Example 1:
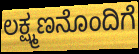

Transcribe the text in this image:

ಲಕ್ಷ್ಮಣನೊಂದಿಗೆ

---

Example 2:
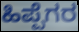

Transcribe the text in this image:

ಹಿಪ್ಪೆಗರ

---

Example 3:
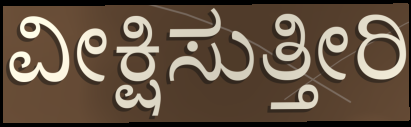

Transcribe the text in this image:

ವೀಕ್ಷಿಸುತ್ತೀರಿ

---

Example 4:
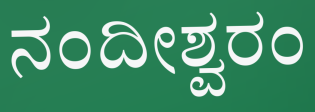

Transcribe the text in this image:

ನಂದೀಶ್ವರಂ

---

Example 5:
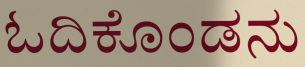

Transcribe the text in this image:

ಓದಿಕೊಂಡನು